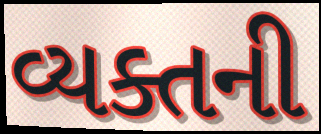
વ્યક્તની